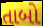
તાબો